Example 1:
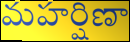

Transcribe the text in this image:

మహర్షిణా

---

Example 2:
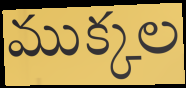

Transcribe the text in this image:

ముక్కల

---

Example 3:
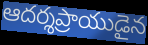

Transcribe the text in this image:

ఆదర్శప్రాయుడైన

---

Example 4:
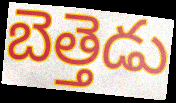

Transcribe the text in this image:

బెత్తెడు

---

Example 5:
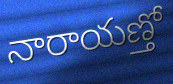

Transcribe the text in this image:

నారాయణ్తో